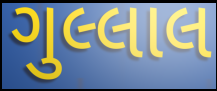
ગુલ્લાલ